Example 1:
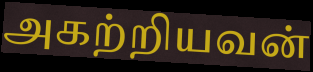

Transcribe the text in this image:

அகற்றியவன்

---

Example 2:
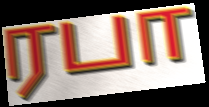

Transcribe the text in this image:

ரபா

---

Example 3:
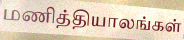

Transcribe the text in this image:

மணித்தியாலங்கள்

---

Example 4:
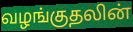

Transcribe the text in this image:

வழங்குதலின்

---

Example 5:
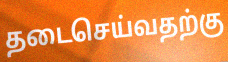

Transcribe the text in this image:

தடைசெய்வதற்கு